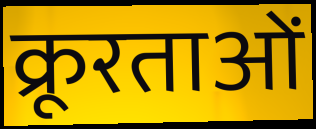
क्रूरताओं